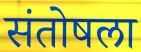
संतोषला